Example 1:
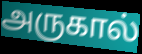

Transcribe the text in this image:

அருகால்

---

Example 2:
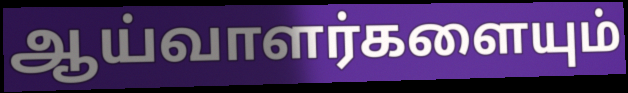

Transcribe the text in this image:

ஆய்வாளர்களையும்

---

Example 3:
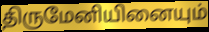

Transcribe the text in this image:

திருமேனியினையும்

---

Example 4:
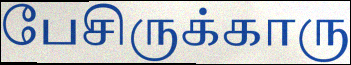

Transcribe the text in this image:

பேசிருக்காரு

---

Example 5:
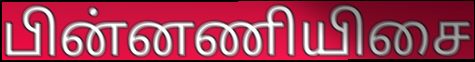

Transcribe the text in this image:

பின்னணியிசை